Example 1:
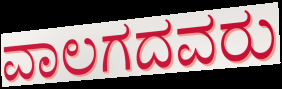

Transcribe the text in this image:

ವಾಲಗದವರು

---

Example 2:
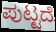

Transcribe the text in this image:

ಪುಟ್ಟದೆ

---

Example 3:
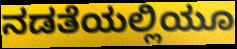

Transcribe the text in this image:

ನಡತೆಯಲ್ಲಿಯೂ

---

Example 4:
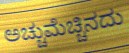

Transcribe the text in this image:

ಅಚ್ಚುಮೆಚ್ಚಿನದು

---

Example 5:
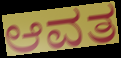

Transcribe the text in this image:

ಆವತ